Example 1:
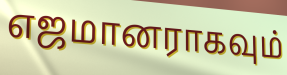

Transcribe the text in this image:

எஜமானராகவும்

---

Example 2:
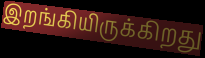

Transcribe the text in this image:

இறங்கியிருக்கிறது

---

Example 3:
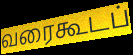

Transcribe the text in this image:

வரைகூடப்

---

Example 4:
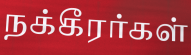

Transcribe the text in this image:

நக்கீரர்கள்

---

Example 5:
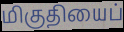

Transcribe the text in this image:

மிகுதியைப்